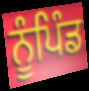
ਨੂੰਪਿੰਡ